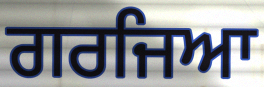
ਗਰਜਿਆ